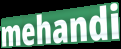
mehandi